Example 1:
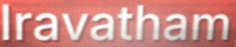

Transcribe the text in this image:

Iravatham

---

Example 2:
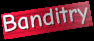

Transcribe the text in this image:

Banditry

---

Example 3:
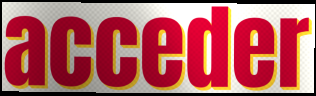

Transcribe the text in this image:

acceder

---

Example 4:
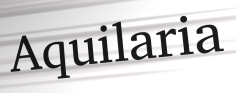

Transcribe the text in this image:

Aquilaria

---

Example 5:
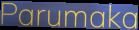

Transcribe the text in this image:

Parumaka